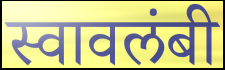
स्वावलंबी